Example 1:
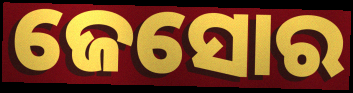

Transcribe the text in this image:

ଜେସୋର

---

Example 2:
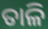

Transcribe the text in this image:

ତାଳି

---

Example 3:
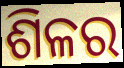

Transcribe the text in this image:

ଶିଳର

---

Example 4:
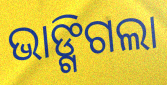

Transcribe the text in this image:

ଭାଙ୍ଗିଗଲା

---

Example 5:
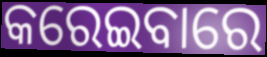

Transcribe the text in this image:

କରେଇବାରେ